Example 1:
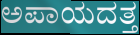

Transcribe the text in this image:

ಅಪಾಯದತ್ತ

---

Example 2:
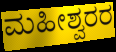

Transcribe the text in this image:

ಮಹೀಶ್ವರರ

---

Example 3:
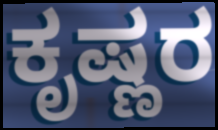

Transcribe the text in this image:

ಕೃಷ್ಣರ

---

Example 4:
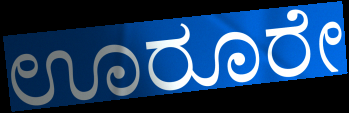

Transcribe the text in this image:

ಊರೂರೇ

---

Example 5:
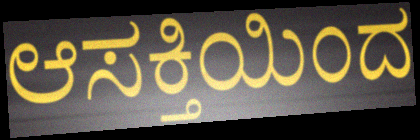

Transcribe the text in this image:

ಆಸಕ್ತಿಯಿಂದ